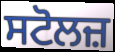
ਸਟੋਲਜ਼